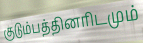
குடும்பத்தினரிடமும்